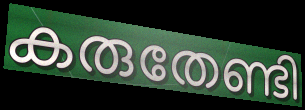
കരുതേണ്ടി